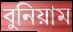
বুনিয়াম